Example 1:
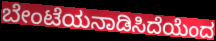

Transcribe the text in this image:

ಬೇಂಟೆಯನಾಡಿಸಿದೆಯೆಂದ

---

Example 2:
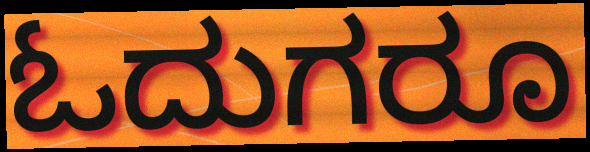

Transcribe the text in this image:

ಓದುಗರೂ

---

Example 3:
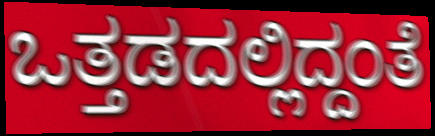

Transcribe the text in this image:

ಒತ್ತಡದಲ್ಲಿದ್ದಂತೆ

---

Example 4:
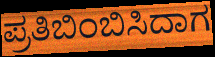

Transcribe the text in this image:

ಪ್ರತಿಬಿಂಬಿಸಿದಾಗ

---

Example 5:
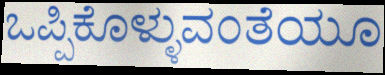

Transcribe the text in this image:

ಒಪ್ಪಿಕೊಳ್ಳುವಂತೆಯೂ